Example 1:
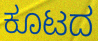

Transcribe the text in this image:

ಕೂಟದ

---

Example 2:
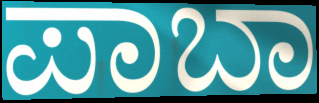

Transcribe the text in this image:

ಪಾಬಾ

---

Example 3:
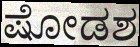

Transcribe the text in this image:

ಷೋಡಶ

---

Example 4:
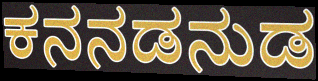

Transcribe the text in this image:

ಕನನಡನುಡ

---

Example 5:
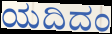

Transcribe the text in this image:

ಯದಿದಂ